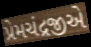
પ્રેમચંદ્રજીએ